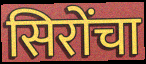
सिरोंचा